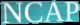
NCAP